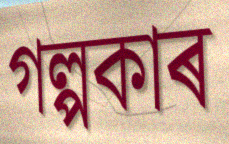
গল্পকাৰ